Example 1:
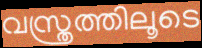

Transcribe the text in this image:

വസ്ത്രത്തിലൂടെ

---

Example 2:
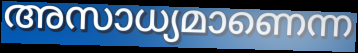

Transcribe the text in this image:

അസാധ്യമാണെന്ന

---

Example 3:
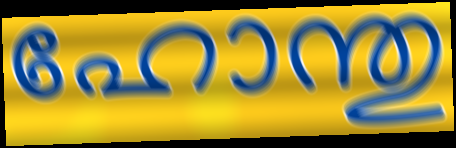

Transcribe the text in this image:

ഹോന്തു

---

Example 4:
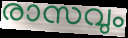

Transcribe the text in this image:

രാസവും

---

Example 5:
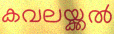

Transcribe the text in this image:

കവലയ്ക്കൽ